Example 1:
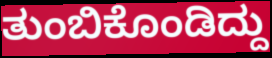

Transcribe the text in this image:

ತುಂಬಿಕೊಂಡಿದ್ದು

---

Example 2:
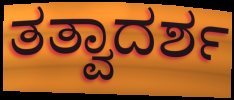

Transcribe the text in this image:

ತತ್ವಾದರ್ಶ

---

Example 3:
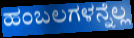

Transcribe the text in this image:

ಹಂಬಲಗಳನ್ನೆಲ್ಲ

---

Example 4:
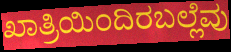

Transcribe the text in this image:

ಖಾತ್ರಿಯಿಂದಿರಬಲ್ಲೆವು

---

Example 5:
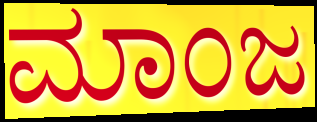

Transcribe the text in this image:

ಮಾಂಜ